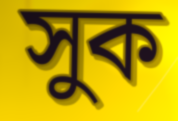
সুক